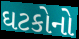
ઘટકોનો